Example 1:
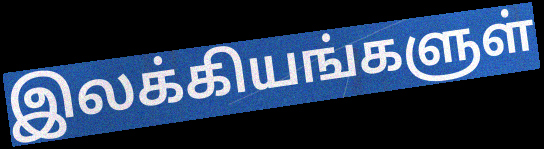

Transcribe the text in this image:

இலக்கியங்களுள்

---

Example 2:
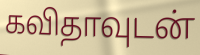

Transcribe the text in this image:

கவிதாவுடன்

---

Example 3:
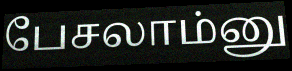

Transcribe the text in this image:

பேசலாம்னு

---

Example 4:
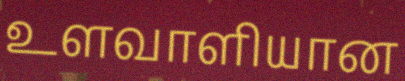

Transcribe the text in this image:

உளவாளியான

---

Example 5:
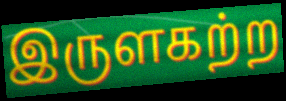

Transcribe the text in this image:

இருளகற்ற